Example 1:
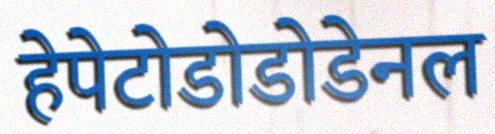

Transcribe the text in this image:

हेपेटोडोडोडेनल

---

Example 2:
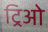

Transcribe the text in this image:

ट्रिओ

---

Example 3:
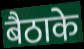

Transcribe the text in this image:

बैठाके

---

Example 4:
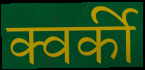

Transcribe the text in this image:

क्वर्की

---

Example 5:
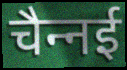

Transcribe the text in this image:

चैन्नई